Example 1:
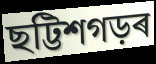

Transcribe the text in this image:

ছট্টিশগড়ৰ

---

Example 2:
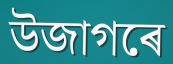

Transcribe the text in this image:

উজাগৰে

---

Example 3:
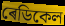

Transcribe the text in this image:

ৰেডিকেল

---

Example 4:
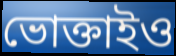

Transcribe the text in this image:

ভোক্তাইও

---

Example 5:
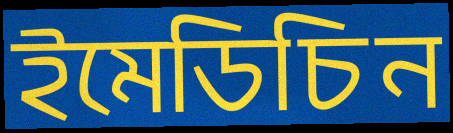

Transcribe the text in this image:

ইমেডিচিন